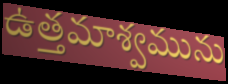
ఉత్తమాశ్వమును